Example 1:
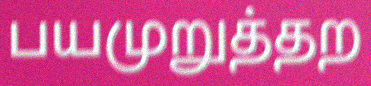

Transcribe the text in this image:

பயமுறுத்தற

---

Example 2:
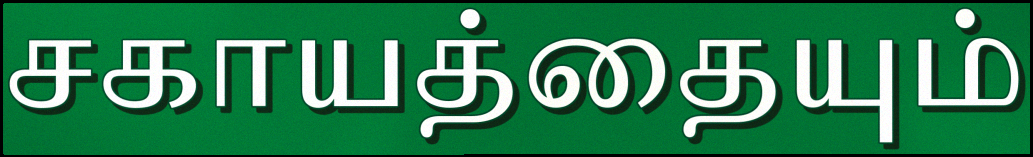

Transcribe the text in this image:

சகாயத்தையும்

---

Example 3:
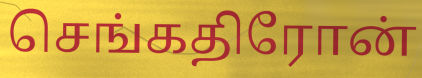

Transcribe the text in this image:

செங்கதிரோன்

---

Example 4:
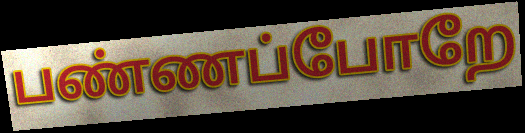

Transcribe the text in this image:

பண்ணப்போறே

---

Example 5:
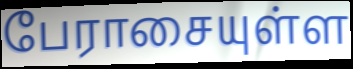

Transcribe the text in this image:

பேராசையுள்ள